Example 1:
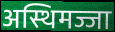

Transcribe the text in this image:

अस्थिमज्जा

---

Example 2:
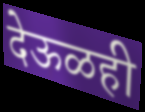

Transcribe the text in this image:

देऊळही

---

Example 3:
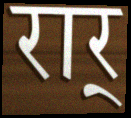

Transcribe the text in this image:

रार्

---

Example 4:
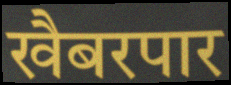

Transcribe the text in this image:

खैबरपार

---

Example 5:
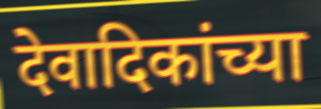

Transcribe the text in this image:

देवादिकांच्या